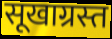
सूखाग्रस्‍त